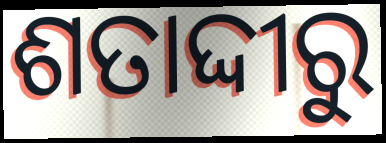
ଶତାଦ୍ଦୀରୁ